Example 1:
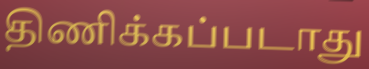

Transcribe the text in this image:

திணிக்கப்படாது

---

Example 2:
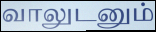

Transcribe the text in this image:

வாலுடனும்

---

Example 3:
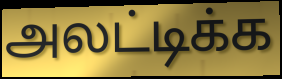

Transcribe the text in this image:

அலட்டிக்க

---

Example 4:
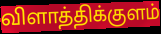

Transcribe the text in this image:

விளாத்திக்குளம்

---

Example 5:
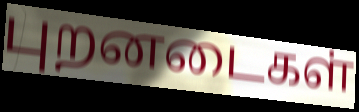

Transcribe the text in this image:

புறனடைகள்